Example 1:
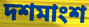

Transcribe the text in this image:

দশমাংশ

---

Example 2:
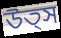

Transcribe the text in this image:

উত্স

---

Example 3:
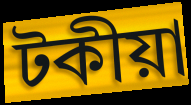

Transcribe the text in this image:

টকীয়া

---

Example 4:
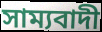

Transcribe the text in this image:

সাম্যবাদী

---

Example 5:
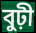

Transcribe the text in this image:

বুঢ়ী